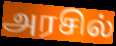
அரசில்